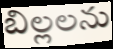
బిల్లలను